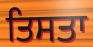
ਤਿਸਤਾ